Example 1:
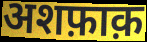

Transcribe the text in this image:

अशफ़ाक़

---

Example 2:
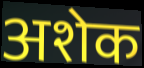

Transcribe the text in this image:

अशेक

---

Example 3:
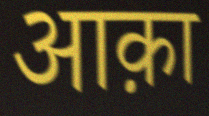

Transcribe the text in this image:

आक़ा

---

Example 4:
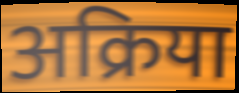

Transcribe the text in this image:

अक्रिया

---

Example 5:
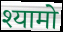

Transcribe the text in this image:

श्यामो